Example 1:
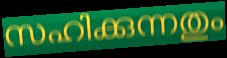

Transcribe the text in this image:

സഹിക്കുന്നതും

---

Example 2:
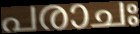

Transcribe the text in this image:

പരാചഃ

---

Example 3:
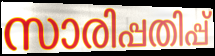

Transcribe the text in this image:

സാരിപ്പതിപ്പ്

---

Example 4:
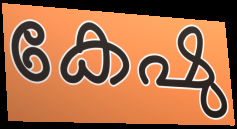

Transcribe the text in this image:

കേഷു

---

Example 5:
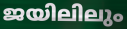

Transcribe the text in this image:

ജയിലിലും